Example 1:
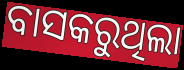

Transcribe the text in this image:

ବାସକରୁଥିଲା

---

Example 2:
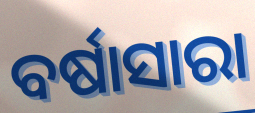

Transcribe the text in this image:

ବର୍ଷାସାରା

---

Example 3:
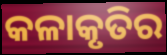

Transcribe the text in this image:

କଳାକୃତିର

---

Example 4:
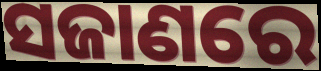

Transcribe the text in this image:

ସଜାଣରେ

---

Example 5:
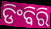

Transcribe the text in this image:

ଡିଂବିରି